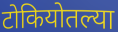
टोकियोतल्या